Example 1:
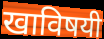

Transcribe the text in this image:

खाविषयी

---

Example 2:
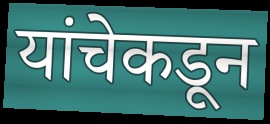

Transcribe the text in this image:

यांचेकडून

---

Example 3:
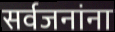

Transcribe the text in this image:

सर्वजनांना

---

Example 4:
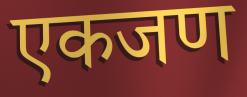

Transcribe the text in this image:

एकजण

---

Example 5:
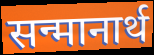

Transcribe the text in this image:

सन्मानार्थ